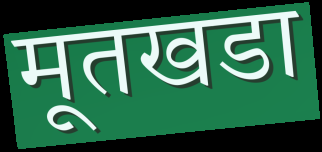
मूतखडा